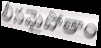
లీనమైపోతాం